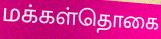
மக்கள்தொகை